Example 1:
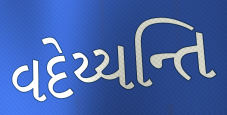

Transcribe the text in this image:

વદેય્યન્તિ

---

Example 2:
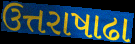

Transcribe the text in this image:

ઉત્તરાષાઢા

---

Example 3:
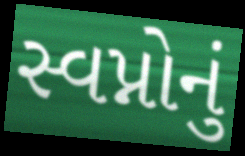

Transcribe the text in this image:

સ્વપ્નોનું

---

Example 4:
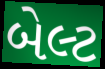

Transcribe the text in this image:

બેલ્ટ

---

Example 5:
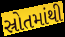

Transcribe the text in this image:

સ્રોતમાંથી